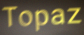
Topaz